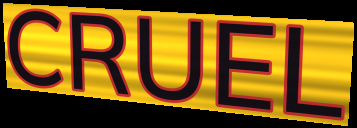
CRUEL